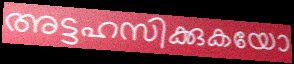
അട്ടഹസിക്കുകയോ